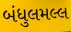
બંધુલમલ્લ